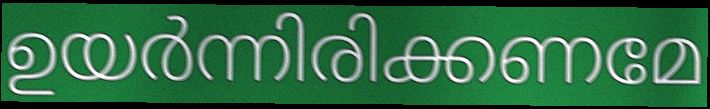
ഉയർന്നിരിക്കണമേ